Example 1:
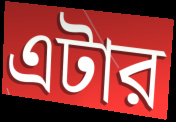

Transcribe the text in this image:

এটার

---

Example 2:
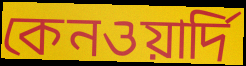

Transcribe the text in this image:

কেনওয়ার্দি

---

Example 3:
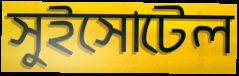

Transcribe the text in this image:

সুইসোটেল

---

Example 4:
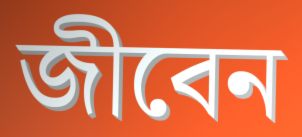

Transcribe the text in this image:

জীবেন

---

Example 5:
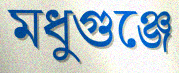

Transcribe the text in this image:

মধুগুঞ্জে